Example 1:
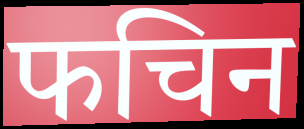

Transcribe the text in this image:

फचिन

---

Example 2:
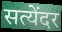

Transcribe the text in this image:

सत्येंदर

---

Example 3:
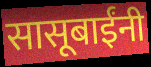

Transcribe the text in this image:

सासूबाईंनी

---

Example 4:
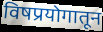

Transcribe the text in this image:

विषप्रयोगातून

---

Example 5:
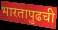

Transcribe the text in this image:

भारतापुढची